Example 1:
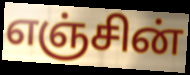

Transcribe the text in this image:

எஞ்சின்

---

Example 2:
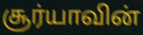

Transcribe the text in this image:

சூர்யாவின்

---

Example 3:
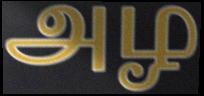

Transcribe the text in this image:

அழ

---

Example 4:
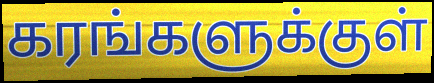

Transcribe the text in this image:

கரங்களுக்குள்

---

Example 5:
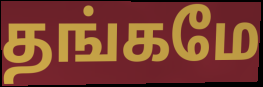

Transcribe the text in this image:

தங்கமே